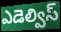
ఎడెల్విస్